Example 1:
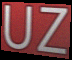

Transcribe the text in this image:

UZ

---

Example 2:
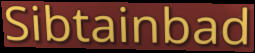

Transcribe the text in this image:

Sibtainbad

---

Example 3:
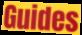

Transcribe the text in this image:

Guides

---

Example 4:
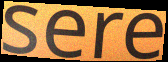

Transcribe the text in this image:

sere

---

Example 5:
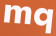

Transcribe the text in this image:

mq